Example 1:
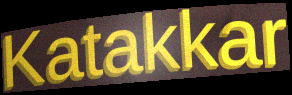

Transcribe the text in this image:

Katakkar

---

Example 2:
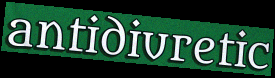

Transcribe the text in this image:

antidiuretic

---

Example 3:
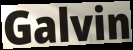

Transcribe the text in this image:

Galvin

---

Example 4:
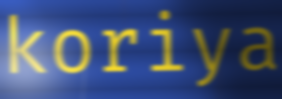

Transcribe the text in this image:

koriya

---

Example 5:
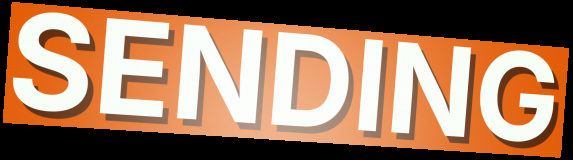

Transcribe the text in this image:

SENDING